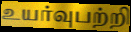
உயர்வுபற்றி